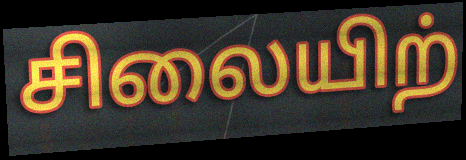
சிலையிற்